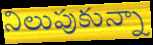
నిలుపుకున్నా